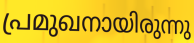
പ്രമുഖനായിരുന്നു